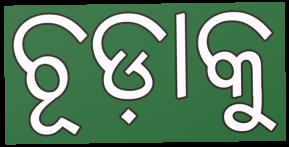
ଚୂଡ଼ାକୁ